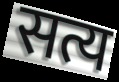
सत्य